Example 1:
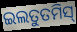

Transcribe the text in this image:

ଇଲତୁତମିସ୍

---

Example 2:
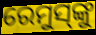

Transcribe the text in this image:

ରେମୁସ୍‌ଙ୍କୁ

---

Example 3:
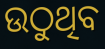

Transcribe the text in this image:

ଉଠୁଥିବ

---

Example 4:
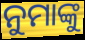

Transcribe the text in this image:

ନୁମାଙ୍କୁ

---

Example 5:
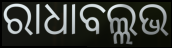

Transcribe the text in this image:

ରାଧାବଲ୍ଲଭ